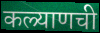
कल्याणची